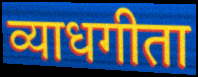
व्याधगीता